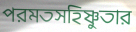
পরমতসহিষ্ণুতার